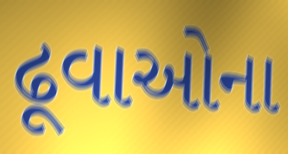
ઢૂવાઓના